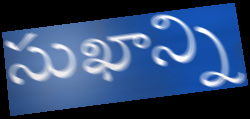
సుఖాన్ని